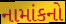
નામાંકનો